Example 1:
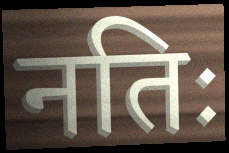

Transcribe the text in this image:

नतिः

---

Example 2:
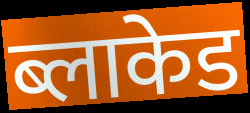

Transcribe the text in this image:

ब्लाकेड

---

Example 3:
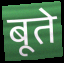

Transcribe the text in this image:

बूते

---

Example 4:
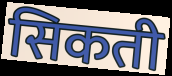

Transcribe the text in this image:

सिकती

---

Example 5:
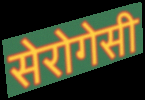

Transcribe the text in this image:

सेरोगेसी